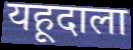
यहूदाला